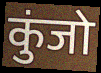
कुंजो